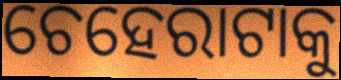
ଚେହେରାଟାକୁ